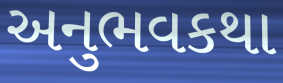
અનુભવકથા